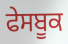
ਫੇਸਬੂਕ